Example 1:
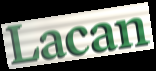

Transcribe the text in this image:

Lacan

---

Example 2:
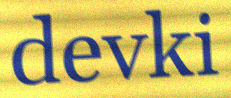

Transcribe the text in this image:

devki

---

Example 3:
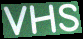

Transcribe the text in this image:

VHS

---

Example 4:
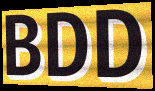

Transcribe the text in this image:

BDD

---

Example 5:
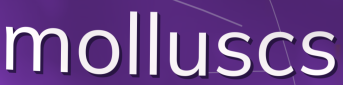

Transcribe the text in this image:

molluscs